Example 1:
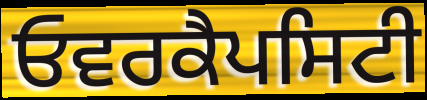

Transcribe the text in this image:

ਓਵਰਕੈਪਸਿਟੀ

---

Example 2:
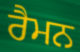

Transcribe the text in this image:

ਰੈਮਨ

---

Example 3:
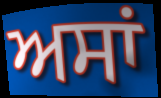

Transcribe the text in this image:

ਅਸਾਂ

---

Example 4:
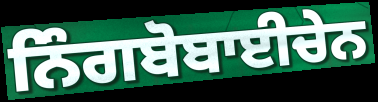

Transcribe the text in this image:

ਨਿੰਗਬੋਬਾਈਚੇਨ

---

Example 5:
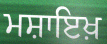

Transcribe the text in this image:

ਮਸ਼ਾਇਖ਼